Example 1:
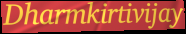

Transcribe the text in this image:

Dharmkirtivijay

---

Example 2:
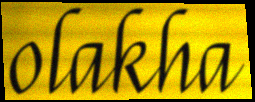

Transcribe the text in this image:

olakha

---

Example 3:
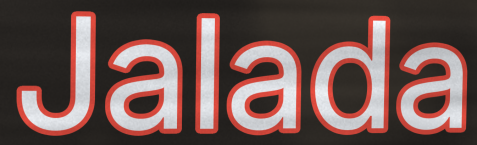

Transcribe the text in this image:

Jalada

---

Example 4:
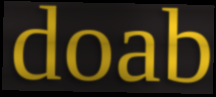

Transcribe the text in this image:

doab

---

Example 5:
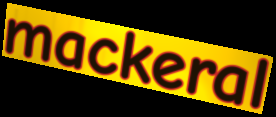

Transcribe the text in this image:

mackeral